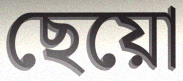
ছেয়ো